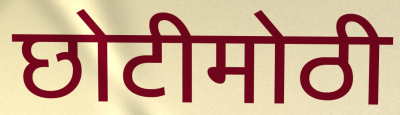
छोटीमोठी